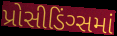
પ્રોસીડિંગ્સમાં